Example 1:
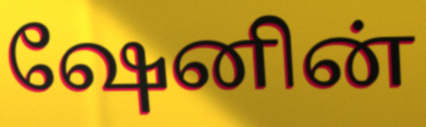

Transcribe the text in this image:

ஷேனின்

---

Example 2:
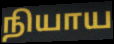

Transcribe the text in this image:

நியாய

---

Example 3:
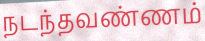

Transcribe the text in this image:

நடந்தவண்ணம்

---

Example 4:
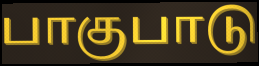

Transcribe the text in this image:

பாகுபாடு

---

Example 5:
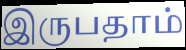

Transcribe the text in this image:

இருபதாம்